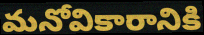
మనోవికారానికి